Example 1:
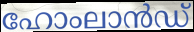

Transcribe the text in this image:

ഹോംലാൻഡ്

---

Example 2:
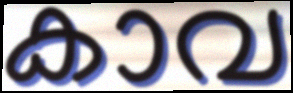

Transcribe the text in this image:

കാവ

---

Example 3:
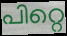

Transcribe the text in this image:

പിറ്റെ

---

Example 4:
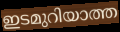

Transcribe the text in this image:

ഇടമുറിയാത്ത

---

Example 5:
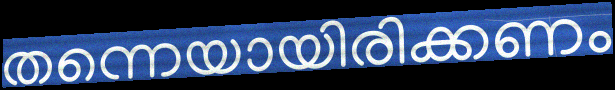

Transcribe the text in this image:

തന്നെയായിരിക്കണം